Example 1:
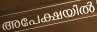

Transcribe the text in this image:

അപേക്ഷയിൽ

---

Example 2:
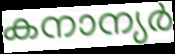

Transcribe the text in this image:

കനാന്യർ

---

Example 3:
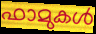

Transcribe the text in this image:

ഫാമുകൾ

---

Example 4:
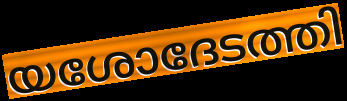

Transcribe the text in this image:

യശോദേടത്തി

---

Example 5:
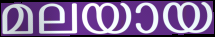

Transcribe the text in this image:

മലയായ